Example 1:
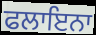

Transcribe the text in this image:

ਫਲਾਇਨਾ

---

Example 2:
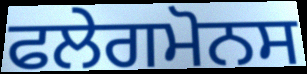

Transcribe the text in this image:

ਫਲੇਗਮੋਨਸ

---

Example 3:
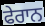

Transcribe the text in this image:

ਫੇਰਾਨ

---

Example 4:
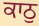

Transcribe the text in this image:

ਕਾਠੁ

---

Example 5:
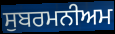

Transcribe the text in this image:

ਸੁਬਰਮਨੀਅਮ